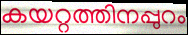
കയറ്റത്തിനപ്പുറം